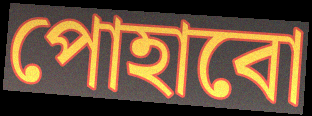
পোহাবো